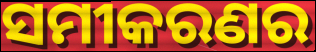
ସମୀକରଣର